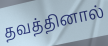
தவத்தினால்